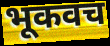
भूकवच